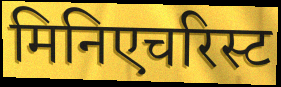
मिनिएचरिस्ट